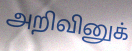
அறிவினுக்